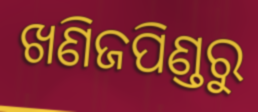
ଖଣିଜପିଣ୍ଡରୁ